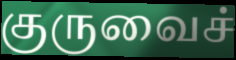
குருவைச்